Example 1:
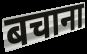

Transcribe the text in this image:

बचाना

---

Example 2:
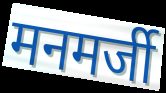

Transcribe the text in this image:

मनमर्जी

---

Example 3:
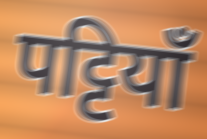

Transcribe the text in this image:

पट्टियाँ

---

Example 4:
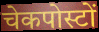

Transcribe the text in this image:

चेकपोस्टों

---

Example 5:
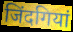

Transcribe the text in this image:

जिंदगियां